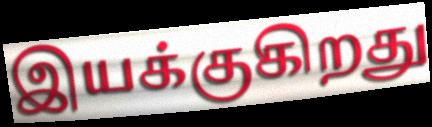
இயக்குகிறது